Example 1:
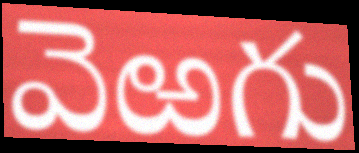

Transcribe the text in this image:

వెఱగు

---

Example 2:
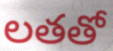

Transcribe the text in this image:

లతతో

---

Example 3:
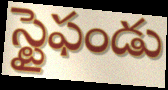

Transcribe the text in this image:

స్టైఫండు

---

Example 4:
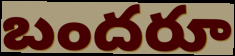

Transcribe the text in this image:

బందరూ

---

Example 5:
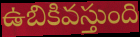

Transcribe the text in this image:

ఉబికివస్తుంది